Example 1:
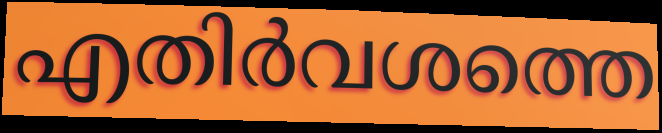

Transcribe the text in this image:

എതിർവശത്തെ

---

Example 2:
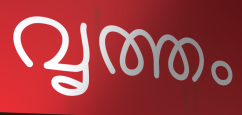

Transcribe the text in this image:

വൃത്തം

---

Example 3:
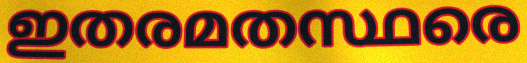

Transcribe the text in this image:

ഇതരമതസ്ഥരെ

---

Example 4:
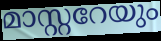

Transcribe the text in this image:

മാസ്റ്ററേയും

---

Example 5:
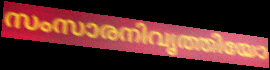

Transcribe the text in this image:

സംസാരനിവൃത്തിയോ